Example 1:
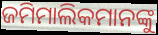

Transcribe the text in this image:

ଜମିମାଲିକମାନଙ୍କୁ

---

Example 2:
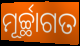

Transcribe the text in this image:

ମୂର୍ଚ୍ଛାଗତ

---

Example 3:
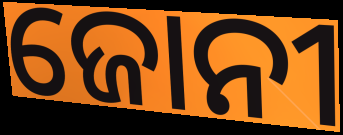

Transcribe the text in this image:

ଜୋନୀ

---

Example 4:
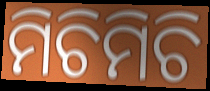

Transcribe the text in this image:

ମିଚିମିଚି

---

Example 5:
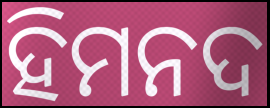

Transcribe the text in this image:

ହିମନଦ